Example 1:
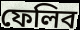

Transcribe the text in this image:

ফেলিব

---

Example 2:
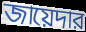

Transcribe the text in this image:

জায়েদার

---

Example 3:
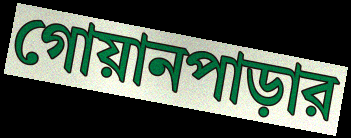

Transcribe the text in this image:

গোয়ানপাড়ার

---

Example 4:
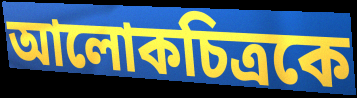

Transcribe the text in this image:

আলোকচিত্রকে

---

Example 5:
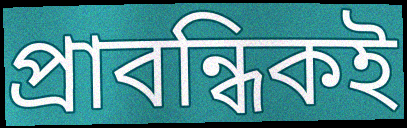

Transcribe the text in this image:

প্রাবন্ধিকই